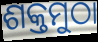
ଶକ୍ତମୁଠା